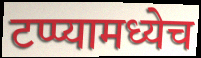
टप्प्यामध्येच